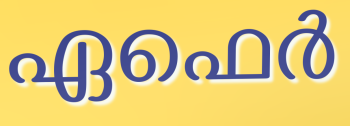
ഏഫെർ